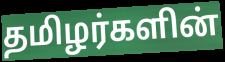
தமிழர்களின்